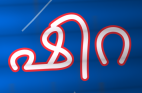
ഷിറ